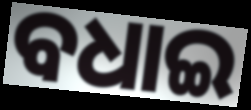
ବଧାଇ